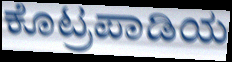
ಕೊಟ್ರಪಾಡಿಯ